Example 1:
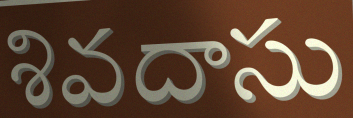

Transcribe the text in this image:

శివదాసు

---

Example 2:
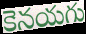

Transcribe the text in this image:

కెనయగు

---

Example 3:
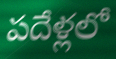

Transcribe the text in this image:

పదేళ్లలో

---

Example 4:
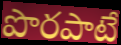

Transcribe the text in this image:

పొరపాటే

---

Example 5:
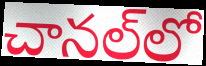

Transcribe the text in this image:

చానల్‌లో